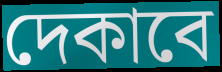
দেকাবে